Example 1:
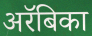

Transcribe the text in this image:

अरॅबिका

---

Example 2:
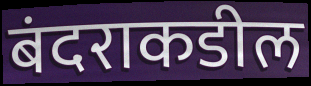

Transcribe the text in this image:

बंदराकडील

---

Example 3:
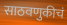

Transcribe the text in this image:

साठवणुकीचं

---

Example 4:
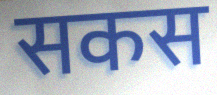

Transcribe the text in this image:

सकस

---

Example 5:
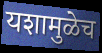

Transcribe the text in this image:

यशामुळेच